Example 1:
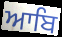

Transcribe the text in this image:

ਆਬਿ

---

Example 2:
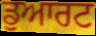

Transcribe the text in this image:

ਡੁਆਰਟ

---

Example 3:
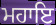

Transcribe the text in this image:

ਮਹਾਇ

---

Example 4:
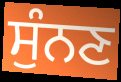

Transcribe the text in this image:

ਸੁੰਨਣ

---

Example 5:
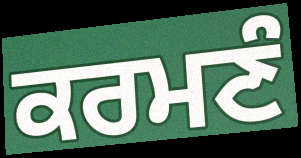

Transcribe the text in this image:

ਕਰਮਣੰ